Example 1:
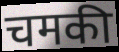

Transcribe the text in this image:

चमकी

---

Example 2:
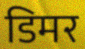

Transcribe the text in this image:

डिमर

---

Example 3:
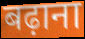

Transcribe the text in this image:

बढ़ाना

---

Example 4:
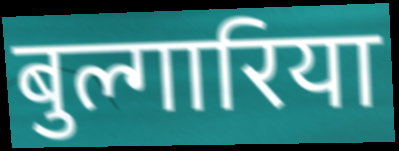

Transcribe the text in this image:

बुल्गारिया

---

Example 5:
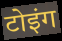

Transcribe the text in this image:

टोइंग